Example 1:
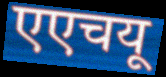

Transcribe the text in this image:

एएचयू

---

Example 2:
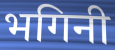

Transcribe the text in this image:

भगिनी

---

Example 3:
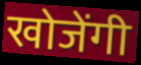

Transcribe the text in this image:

खोजेंगी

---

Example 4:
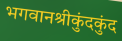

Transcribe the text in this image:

भगवानश्रीकुंदकुंद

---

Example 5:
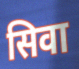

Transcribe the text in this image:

सिवा